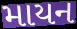
માયન